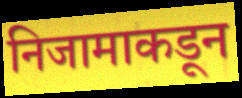
निजामाकडून